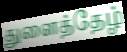
துளைத்தேழ்